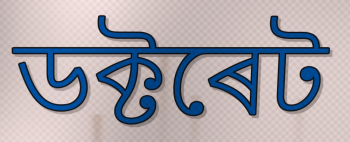
ডক্টৰেট